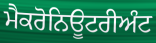
ਮੈਕਰੋਨਿਊਟਰੀਅੰਟ